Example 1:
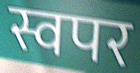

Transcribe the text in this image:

स्वपर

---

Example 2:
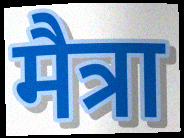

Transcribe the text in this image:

मैत्रा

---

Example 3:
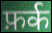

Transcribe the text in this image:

फ़र्क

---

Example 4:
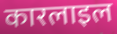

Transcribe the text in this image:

कारलाइल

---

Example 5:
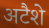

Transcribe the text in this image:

अटैशे